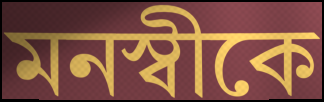
মনস্বীকে